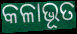
କଳାଭୂତ